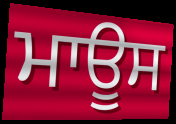
ਮਾਊਸ